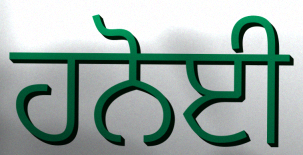
ਹਨੋਈ